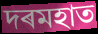
দৰমহাত